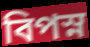
বিপস্ন